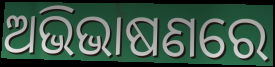
ଅଭିଭାଷଣରେ